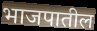
भाजपातील